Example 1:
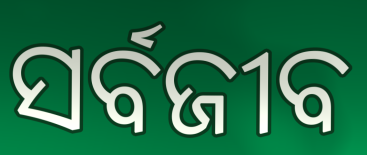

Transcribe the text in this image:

ସର୍ବଜୀବ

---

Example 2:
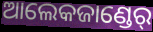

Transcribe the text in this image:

ଆଲେକଜାଣ୍ଡେର୍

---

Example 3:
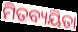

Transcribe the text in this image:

ମିତବ୍ୟୟିତା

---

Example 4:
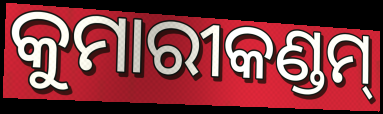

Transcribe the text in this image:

କୁମାରୀକଣ୍ଡମ୍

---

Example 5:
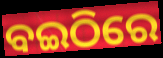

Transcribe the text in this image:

ବଇଠିରେ